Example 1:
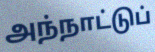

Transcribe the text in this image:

அந்நாட்டுப்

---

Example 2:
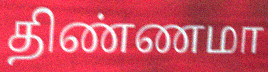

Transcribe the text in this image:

திண்ணமா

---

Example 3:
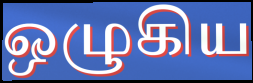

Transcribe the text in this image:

ஒழுகிய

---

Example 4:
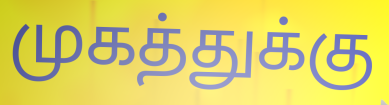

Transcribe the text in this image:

முகத்துக்கு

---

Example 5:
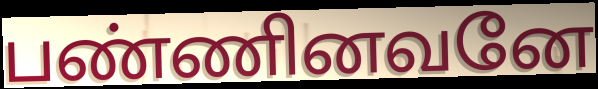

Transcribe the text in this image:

பண்ணினவனே